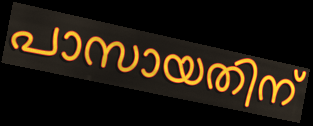
പാസായതിന്